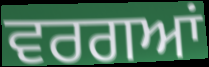
ਵਰਗਆਂ